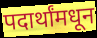
पदार्थांमधून